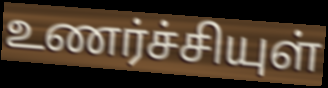
உணர்ச்சியுள்